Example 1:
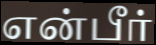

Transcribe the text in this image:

என்பீர்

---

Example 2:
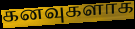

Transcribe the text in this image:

கனவுகளாக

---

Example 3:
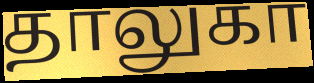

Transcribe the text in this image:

தாலுகா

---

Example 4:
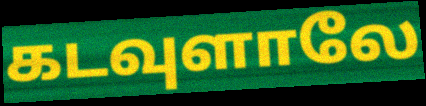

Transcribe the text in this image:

கடவுளாலே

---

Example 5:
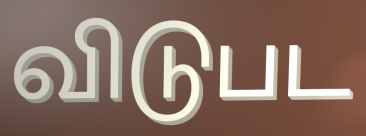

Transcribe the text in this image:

விடுபட